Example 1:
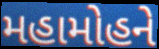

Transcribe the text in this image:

મહામોહને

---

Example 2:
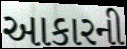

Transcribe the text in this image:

આકારની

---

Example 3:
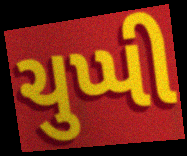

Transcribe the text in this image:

ચુપ્પી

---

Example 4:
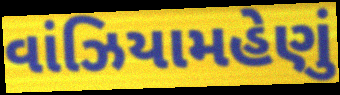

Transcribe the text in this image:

વાંઝિયામહેણું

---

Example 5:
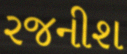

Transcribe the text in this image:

રજનીશ